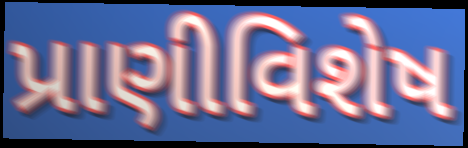
પ્રાણીવિશેષ